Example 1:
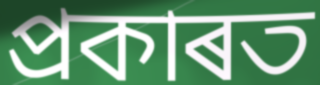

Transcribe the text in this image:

প্ৰকাৰত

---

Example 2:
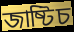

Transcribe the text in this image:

জাষ্টিচ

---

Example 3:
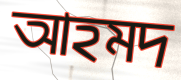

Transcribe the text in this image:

আহমদ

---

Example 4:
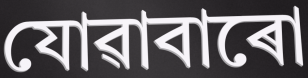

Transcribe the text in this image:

যোৱাবাৰো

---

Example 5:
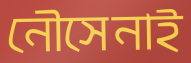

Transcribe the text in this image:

নৌসেনাই